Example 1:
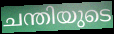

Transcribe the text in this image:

ചന്തിയുടെ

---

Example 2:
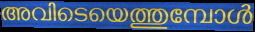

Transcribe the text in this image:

അവിടെയെത്തുമ്പോൾ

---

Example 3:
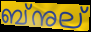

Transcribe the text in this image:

ബ്നുല്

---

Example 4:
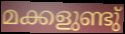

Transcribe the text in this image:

മക്കളുണ്ടു്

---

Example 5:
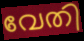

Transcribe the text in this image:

വേതി